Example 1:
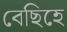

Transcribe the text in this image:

বেছিহে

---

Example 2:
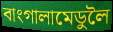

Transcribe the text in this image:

বাংগালামেডুলৈ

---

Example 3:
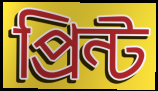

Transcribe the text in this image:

প্ৰিন্ট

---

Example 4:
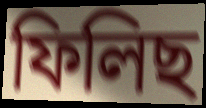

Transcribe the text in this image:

ফিলিছ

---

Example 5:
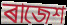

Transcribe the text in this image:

ৰাজেশ